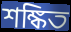
শঙ্কিত